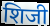
शिजी